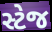
સ્ટેજ